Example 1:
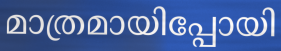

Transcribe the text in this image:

മാത്രമായിപ്പോയി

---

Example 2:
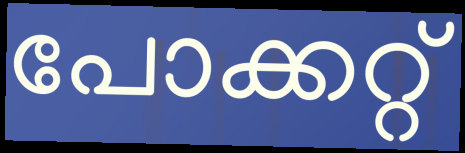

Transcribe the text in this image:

പോക്കറ്റ്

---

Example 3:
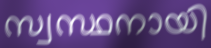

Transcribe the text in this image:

സ്വസ്ഥനായി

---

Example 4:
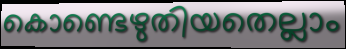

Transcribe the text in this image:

കൊണ്ടെഴുതിയതെല്ലാം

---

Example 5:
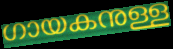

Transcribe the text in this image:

ഗായകനുള്ള